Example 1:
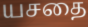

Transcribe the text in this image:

யசதை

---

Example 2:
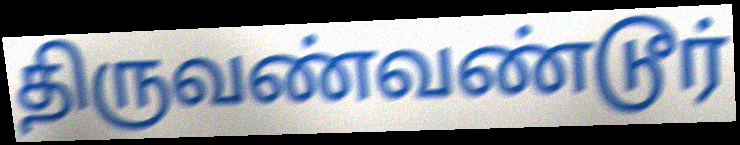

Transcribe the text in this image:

திருவண்வண்டூர்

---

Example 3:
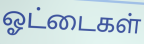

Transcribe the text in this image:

ஓட்டைகள்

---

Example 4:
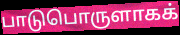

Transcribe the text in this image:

பாடுபொருளாகக்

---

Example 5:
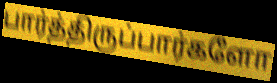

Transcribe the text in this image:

பார்த்திருப்பார்களோ